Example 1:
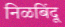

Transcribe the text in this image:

निळबिंदू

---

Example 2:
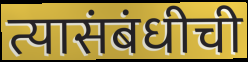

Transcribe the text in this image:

त्यासंबंधीची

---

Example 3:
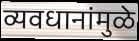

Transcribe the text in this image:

व्यवधानांमुळे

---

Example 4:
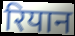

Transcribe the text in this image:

रियान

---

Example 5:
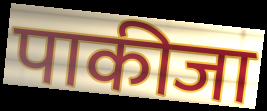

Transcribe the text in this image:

पाकीजा